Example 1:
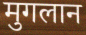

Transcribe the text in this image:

मुगलान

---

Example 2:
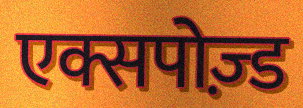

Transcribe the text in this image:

एक्सपोज़्ड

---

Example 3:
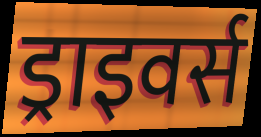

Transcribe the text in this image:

ड्राइवर्स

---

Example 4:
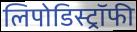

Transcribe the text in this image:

लिपोडिस्ट्रॉफी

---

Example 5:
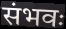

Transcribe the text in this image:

संभवः